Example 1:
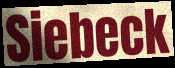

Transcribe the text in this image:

Siebeck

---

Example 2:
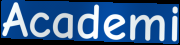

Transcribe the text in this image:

Academi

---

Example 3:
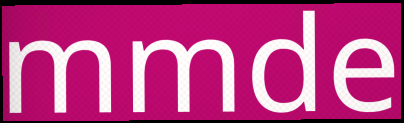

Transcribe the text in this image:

mmde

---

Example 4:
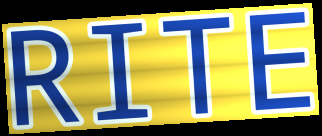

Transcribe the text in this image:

RITE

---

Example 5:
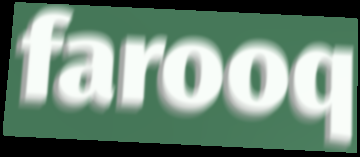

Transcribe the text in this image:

farooq